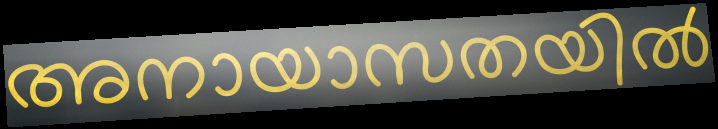
അനായാസതയിൽ